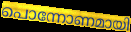
പൊന്നോണമായി